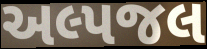
અલ્પજલ